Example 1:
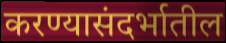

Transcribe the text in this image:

करण्यासंदर्भातील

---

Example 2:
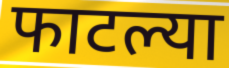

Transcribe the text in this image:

फाटल्या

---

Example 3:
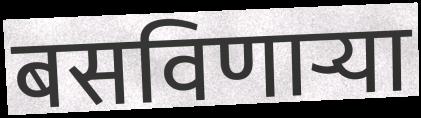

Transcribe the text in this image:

बसविणार्‍या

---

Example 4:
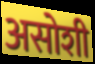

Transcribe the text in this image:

असोशी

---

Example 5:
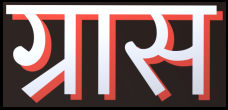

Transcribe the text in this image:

ग्रास